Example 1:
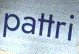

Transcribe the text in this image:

pattri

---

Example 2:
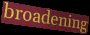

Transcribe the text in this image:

broadening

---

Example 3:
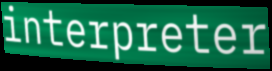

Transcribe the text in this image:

interpreter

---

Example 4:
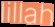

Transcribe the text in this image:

lillah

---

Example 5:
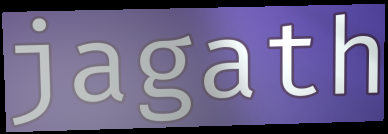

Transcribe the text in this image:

jagath